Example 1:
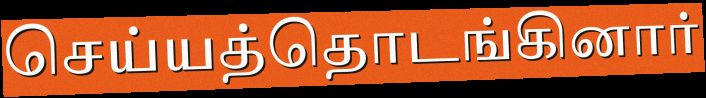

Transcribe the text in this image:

செய்யத்தொடங்கினார்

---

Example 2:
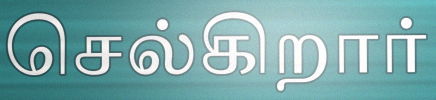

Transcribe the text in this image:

செல்கிறார்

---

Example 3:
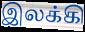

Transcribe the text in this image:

இலக்கி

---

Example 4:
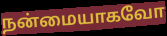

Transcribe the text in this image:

நன்மையாகவோ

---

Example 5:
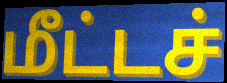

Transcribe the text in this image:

மீட்டச்